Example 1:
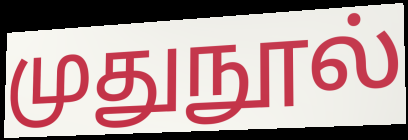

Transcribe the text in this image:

முதுநூல்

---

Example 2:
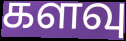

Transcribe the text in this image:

களவு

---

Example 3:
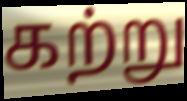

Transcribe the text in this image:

கற்று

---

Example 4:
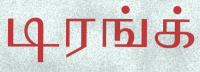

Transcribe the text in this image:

டிரங்க்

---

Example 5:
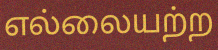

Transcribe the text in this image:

எல்லையற்ற